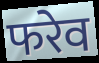
फरेव